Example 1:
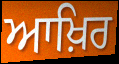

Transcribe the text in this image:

ਆਖ਼ਿਰ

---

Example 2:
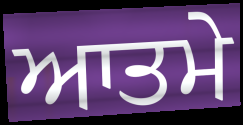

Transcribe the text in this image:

ਆਤਮੇ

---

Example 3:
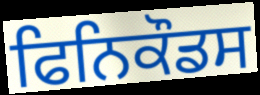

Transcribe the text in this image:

ਫਿਨਿਕੌਡਸ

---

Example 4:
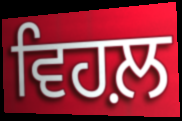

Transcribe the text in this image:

ਵਿਹਲ਼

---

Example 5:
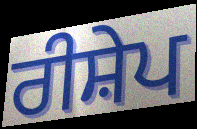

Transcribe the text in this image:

ਰੀਸ਼ੇਪ